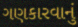
ગણકારવાનું